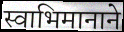
स्वाभिमानाने